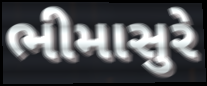
ભીમાસુરે